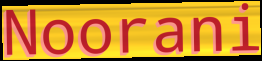
Noorani